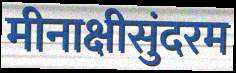
मीनाक्षीसुंदरम